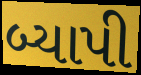
બ્યાપી